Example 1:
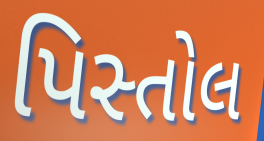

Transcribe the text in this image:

પિસ્તોલ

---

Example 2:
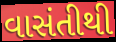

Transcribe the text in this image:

વાસંતીથી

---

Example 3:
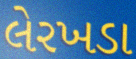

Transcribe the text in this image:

લેરખડા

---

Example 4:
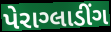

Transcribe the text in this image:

પેરાગ્લાડીંગ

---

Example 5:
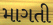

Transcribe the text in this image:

માગતી